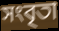
সংবৃতা